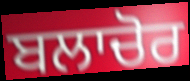
ਬਲਾਚੋਰ